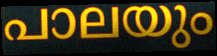
പാലയും